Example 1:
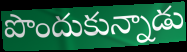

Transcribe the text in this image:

పొందుకున్నాడు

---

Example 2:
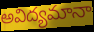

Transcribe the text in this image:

అవిద్యమానా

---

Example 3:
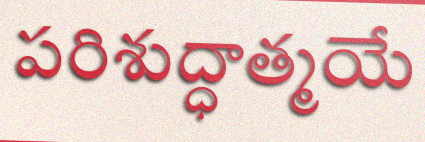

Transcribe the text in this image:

పరిశుద్ధాత్మయే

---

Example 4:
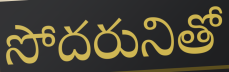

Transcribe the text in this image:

సోదరునితో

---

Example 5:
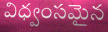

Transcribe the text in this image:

విధ్వంసమైన